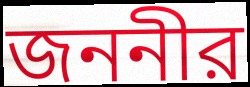
জননীর